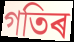
গতিৰ